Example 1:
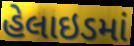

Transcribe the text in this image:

હેલાઇડમાં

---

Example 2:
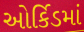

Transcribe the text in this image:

ઓર્કિડમાં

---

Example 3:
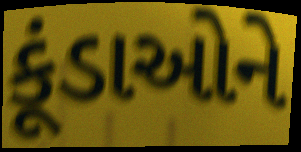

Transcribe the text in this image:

કૂંડાઓને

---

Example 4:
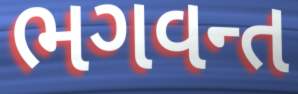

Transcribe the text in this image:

ભગવન્ત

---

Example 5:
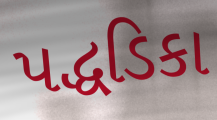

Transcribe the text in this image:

પદ્ધડિકા